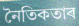
নৈতিকতাৰ